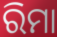
ରିମା